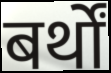
बर्थों